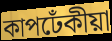
কাপঢেঁকীয়া